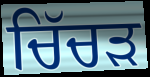
ਚਿੱਚੜ